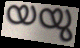
യയു